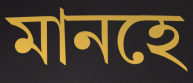
মানহে